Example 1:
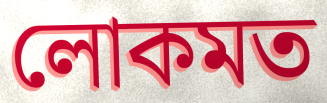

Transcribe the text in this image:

লোকমত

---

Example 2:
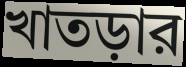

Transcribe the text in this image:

খাতড়ার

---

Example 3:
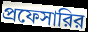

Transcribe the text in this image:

প্রফেসারির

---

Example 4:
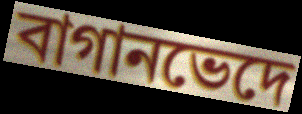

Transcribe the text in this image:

বাগানভেদে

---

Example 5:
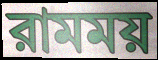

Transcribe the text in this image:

রামময়